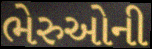
ભેરુઓની